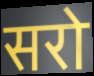
सरो